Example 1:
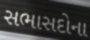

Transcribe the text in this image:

સભાસદોના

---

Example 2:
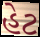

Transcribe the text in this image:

હેટ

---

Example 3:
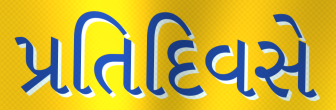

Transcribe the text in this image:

પ્રતિદિવસે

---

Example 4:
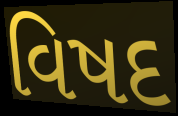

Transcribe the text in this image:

વિષદ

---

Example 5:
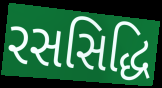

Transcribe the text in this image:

રસસિદ્ધિ